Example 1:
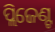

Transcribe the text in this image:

ପ୍ଲିଜେଣ୍ଟ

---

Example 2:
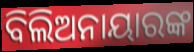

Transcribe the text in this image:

ବିଲିଅନାୟାରଙ୍କ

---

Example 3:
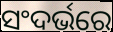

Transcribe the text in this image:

ସଂଦର୍ଭରେ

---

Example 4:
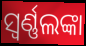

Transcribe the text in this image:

ସ୍ବର୍ଣ୍ଣଲଙ୍କା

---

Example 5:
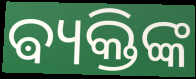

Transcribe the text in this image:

ଵ୍ୟକ୍ତିଙ୍କ